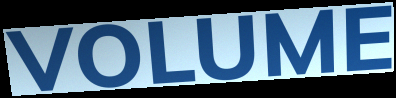
VOLUME